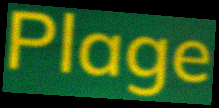
Plage